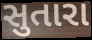
સુતારા